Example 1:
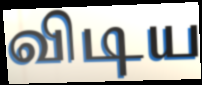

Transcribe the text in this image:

விடிய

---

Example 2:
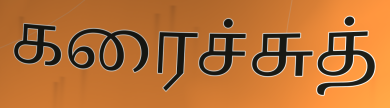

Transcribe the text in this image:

கரைச்சுத்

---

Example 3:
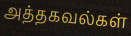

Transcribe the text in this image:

அத்தகவல்கள்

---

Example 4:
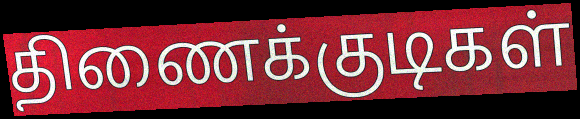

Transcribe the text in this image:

திணைக்குடிகள்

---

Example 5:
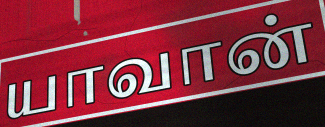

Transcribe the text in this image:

யாவான்